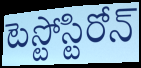
టెస్టోస్టిరోన్